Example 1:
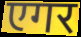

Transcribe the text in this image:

एगर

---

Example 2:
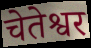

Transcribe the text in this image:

चेतेश्वर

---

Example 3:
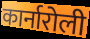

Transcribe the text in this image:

कार्नारोली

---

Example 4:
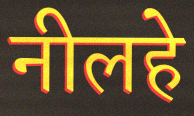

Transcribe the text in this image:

नीलहे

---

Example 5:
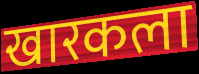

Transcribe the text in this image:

खारकला